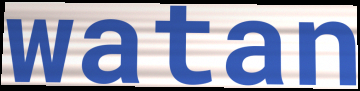
watan